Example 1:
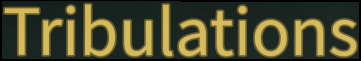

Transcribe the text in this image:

Tribulations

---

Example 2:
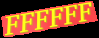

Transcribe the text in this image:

FFFFFF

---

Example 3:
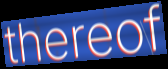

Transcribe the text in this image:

thereof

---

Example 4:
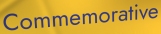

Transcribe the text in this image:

Commemorative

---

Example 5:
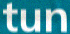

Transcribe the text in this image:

tun